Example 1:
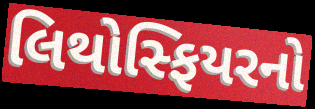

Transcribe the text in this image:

લિથોસ્ફિયરનો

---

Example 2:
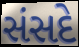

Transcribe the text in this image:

સંસદે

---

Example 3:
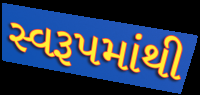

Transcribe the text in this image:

સ્વરૂપમાંથી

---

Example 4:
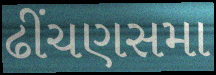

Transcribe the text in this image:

ઢીંચણસમા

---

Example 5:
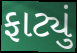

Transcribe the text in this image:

ફાટ્યું